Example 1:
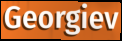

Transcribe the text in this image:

Georgiev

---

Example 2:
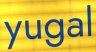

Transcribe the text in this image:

yugal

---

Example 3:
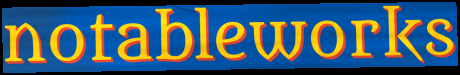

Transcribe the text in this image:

notableworks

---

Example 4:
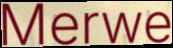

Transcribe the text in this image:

Merwe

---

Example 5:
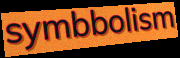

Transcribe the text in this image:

symbbolism